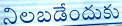
నిలబడేందుకు